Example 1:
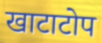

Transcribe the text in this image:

खाटाटोप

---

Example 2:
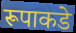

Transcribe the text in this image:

रूपाकडे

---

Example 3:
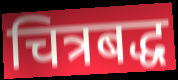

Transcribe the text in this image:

चित्रबद्ध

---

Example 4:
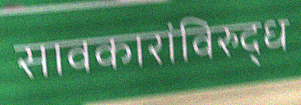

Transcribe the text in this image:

सावकारांविरुद्ध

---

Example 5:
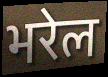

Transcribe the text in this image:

भरेल